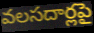
వలసదార్లపై